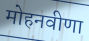
मोहनवीणा